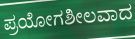
ಪ್ರಯೋಗಶೀಲವಾದ